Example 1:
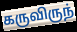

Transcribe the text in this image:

கருவிருந்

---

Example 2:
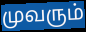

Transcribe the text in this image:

முவரும்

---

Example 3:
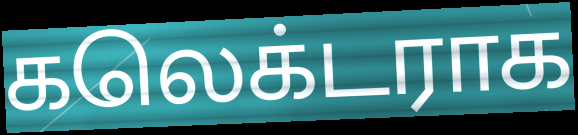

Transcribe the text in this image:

கலெக்டராக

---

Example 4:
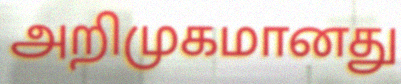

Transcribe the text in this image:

அறிமுகமானது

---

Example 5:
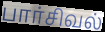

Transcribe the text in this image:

பார்சிவல்